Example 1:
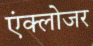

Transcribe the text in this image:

एंक्लोजर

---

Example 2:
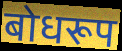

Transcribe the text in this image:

बोधरूप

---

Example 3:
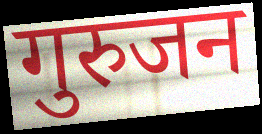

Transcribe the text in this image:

गुरुजन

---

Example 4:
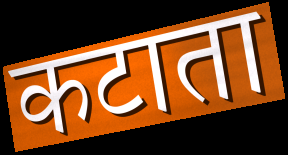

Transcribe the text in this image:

कटाता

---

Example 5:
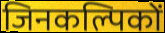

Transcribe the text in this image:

जिनकल्पिकों